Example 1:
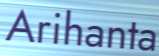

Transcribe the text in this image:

Arihanta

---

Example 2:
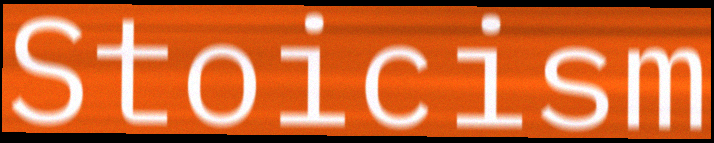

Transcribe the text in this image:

Stoicism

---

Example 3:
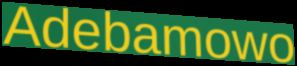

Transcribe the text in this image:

Adebamowo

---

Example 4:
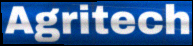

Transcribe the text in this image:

Agritech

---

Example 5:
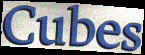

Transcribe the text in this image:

Cubes